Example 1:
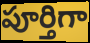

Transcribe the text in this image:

పూర్తిగా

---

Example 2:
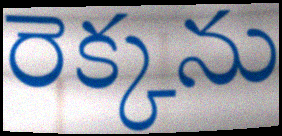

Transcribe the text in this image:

రెక్కను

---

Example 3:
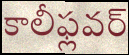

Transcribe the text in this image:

కాలీఫ్లవర్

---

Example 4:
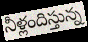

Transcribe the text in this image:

నీళ్లందిస్తున్న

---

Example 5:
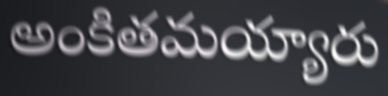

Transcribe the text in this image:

అంకితమయ్యారు